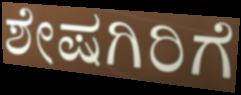
ಶೇಷಗಿರಿಗೆ